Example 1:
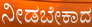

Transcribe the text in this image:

ನೀಡಬೇಕಾದ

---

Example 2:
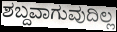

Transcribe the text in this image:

ಶಬ್ದವಾಗುವುದಿಲ್ಲ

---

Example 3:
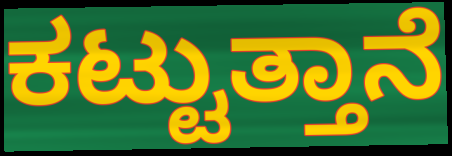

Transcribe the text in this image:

ಕಟ್ಟುತ್ತಾನೆ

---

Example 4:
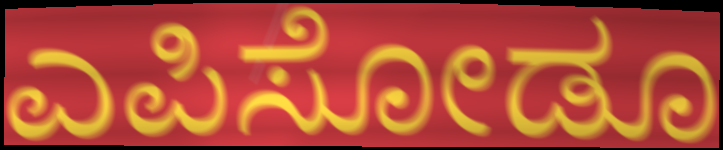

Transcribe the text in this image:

ಎಪಿಸೋಡೂ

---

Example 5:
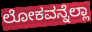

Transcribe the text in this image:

ಲೋಕವನ್ನೆಲ್ಲಾ